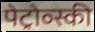
पेट्रोव्स्की